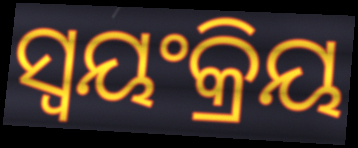
ସ୍ୱୟଂକ୍ରିୟ